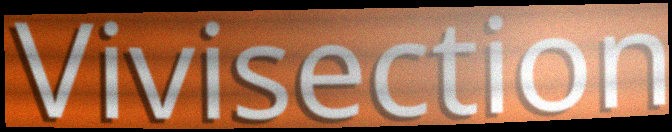
Vivisection